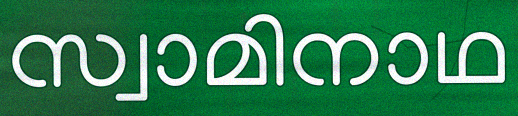
സ്വാമിനാഥ